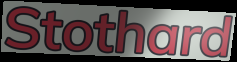
Stothard